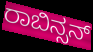
ರಾಬಿನ್ಸನ್